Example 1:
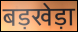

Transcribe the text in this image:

बड़खेड़ा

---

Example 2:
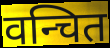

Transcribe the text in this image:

वन्चित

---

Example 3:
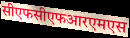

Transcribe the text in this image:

सीएफसीएफआरएमएस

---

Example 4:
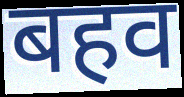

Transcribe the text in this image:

बहव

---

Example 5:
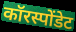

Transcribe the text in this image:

कॉरस्पोंडेट